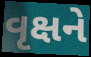
વૃક્ષને